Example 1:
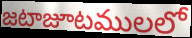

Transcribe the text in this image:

జటాజూటములలో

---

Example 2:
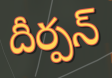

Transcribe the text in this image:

దీర్పన్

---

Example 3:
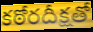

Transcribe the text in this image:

కఠోరదీక్షతో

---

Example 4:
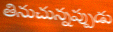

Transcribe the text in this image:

తినుచున్నప్పుడు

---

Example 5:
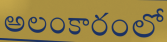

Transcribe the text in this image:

అలంకారంలో